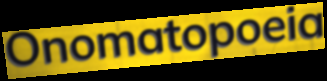
Onomatopoeia